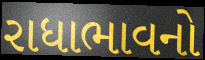
રાધાભાવનો